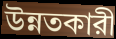
উন্নতকারী